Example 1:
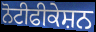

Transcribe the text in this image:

ਨੋਟੀਫੀਕੇਸ਼ਨ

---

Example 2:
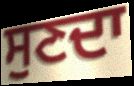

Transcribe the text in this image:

ਸੁਣਦਾ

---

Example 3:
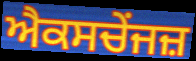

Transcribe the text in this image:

ਐਕਸਚੇਂਜਜ਼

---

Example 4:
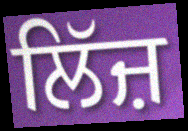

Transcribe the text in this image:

ਲਿੱਜ਼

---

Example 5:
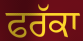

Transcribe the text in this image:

ਫਰੱਕਾ